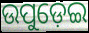
ଉପୁଡ଼େଇ